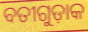
ବତୀଗୁଡ଼ାକ